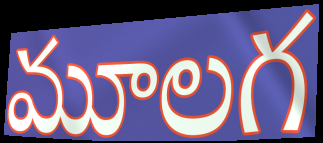
మూలగ